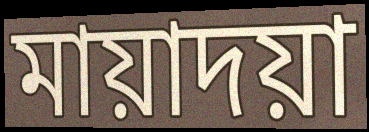
মায়াদয়া